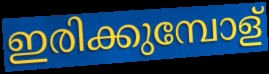
ഇരിക്കുമ്പോള്